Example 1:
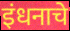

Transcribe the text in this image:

इंधनाचे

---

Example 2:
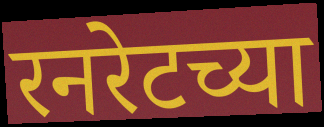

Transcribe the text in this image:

रनरेटच्या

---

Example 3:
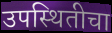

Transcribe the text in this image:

उपस्थितीचा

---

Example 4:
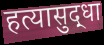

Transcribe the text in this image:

हत्यासुद्धा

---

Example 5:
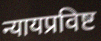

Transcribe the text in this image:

न्यायप्रविष्ट